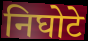
निघोटे